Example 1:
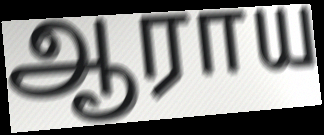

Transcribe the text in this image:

ஆராய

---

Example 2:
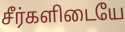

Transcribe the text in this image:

சீர்களிடையே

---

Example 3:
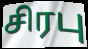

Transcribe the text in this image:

சிரபு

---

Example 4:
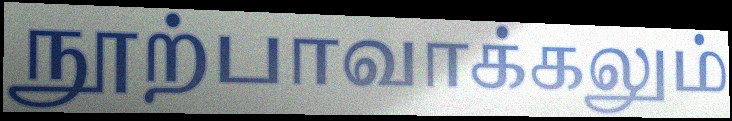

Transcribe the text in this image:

நூற்பாவாக்கலும்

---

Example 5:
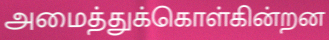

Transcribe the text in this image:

அமைத்துக்கொள்கின்றன